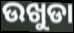
ଉଖୁଡା